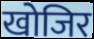
खोजिर